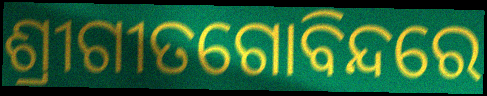
ଶ୍ରୀଗୀତଗୋବିନ୍ଦରେ